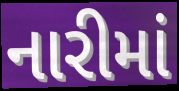
નારીમાં